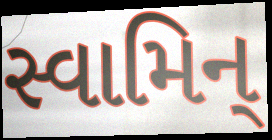
સ્વામિન્